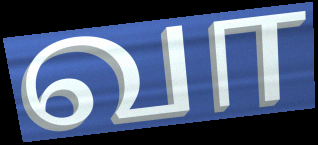
வா